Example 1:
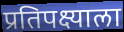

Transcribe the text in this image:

प्रतिपक्ष्याला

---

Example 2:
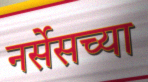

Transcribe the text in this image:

नर्सेसच्या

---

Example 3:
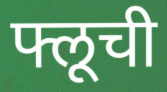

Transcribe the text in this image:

फ्लूची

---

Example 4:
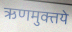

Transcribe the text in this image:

ऋणमुक्तये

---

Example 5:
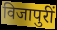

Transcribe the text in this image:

विजापुरीं